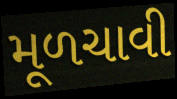
મૂળચાવી